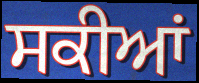
ਸਕੀਆਂ